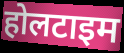
होलटाइम